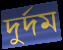
দুর্দম